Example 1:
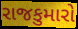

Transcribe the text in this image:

રાજકુમારો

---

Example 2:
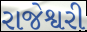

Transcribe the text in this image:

રાજેશ્વરી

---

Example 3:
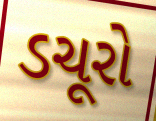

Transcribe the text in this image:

ડચૂરો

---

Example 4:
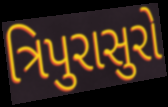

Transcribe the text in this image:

ત્રિપુરાસુરો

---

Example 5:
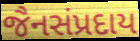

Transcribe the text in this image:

જૈનસંપ્રદાય